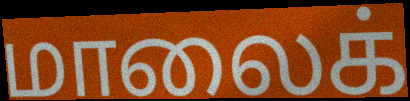
மாலைக்